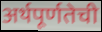
अर्थपूर्णतेची